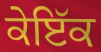
ਕੇਇੱਕ